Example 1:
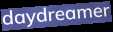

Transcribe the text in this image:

daydreamer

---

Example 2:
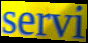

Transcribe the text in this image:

servi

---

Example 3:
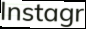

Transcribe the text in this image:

Instagr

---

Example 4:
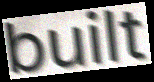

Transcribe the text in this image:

built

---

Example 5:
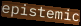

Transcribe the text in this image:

epistemic